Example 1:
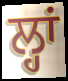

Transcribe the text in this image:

ਲ੍ਹਾਂ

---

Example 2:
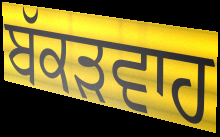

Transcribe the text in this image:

ਬੱਕੜਵਾਹ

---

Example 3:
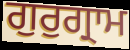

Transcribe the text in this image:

ਗੁਰੁਗ੍ਰਾਮ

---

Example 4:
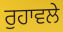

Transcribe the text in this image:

ਰੁਹਾਵਲੇ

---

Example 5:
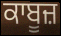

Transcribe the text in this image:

ਕਾਬੂਜ਼